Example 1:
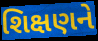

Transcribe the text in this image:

શિક્ષણને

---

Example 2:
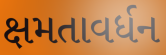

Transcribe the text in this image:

ક્ષમતાવર્ધન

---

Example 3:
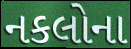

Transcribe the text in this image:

નકલોના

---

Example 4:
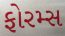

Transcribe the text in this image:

ફોરમ્સ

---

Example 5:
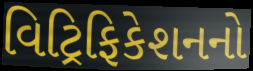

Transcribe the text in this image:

વિટ્રિફિકેશનનો